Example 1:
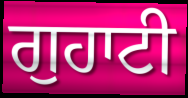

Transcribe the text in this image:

ਗੁਹਾਟੀ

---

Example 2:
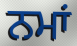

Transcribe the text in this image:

ਨਮਾਂ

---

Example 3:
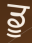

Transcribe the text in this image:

ਡੂ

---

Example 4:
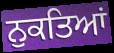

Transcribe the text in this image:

ਨੁਕਤਿਆਂ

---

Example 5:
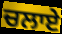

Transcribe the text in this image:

ਚਲਾਏ